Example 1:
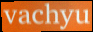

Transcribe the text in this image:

vachyu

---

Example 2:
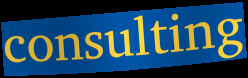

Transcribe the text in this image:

consulting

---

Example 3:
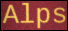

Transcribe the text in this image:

Alps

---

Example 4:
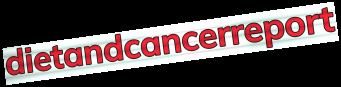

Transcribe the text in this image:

dietandcancerreport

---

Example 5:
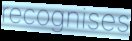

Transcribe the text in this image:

recognises